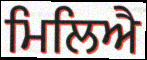
ਮਿਲਿਐ